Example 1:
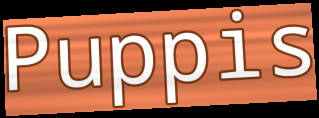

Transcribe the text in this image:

Puppis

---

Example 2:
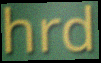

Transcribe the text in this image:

hrd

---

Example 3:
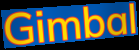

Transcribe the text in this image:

Gimbal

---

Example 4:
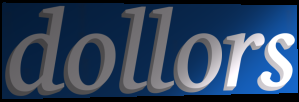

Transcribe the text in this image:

dollors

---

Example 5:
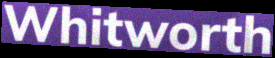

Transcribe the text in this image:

Whitworth